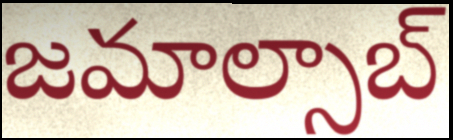
జమాల్సాబ్